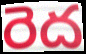
రెద